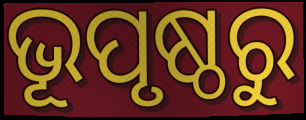
ଭୂପୃଷ୍ଠରୁ